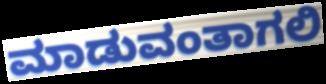
ಮಾಡುವಂತಾಗಲಿ